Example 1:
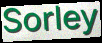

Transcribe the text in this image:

Sorley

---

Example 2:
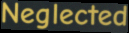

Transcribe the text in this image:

Neglected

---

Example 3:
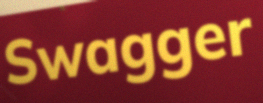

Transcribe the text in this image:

Swagger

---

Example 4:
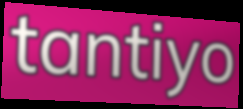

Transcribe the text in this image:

tantiyo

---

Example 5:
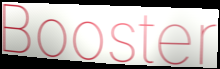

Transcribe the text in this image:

Booster